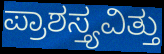
ಪ್ರಾಶಸ್ತ್ಯವಿತ್ತು